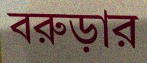
বরুড়ার